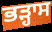
ਭੜ੍ਹਾਸ